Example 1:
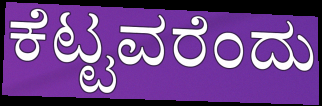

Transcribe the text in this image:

ಕೆಟ್ಟವರೆಂದು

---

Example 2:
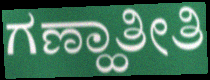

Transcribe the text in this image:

ಗಣ್ಹಾತೀತಿ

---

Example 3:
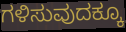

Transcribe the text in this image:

ಗಳಿಸುವುದಕ್ಕೂ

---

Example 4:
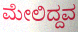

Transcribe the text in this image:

ಮೇಲಿದ್ದವ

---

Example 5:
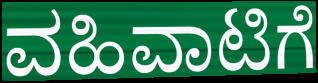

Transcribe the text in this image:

ವಹಿವಾಟಿಗೆ